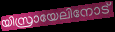
യിസ്രായേലിനോട്